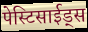
पेस्टिसाईड्स